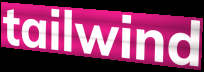
tailwind